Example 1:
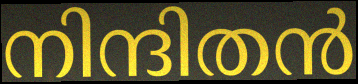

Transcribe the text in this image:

നിന്ദിതൻ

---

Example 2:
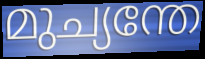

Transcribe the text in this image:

മുച്യന്തേ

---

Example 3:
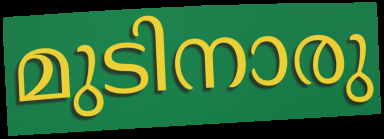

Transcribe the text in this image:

മുടിനാരു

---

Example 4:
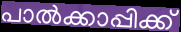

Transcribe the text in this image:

പാൽക്കാപ്പിക്ക്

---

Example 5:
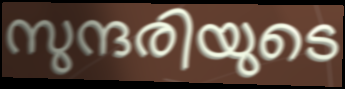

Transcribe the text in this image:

സുന്ദരിയുടെ